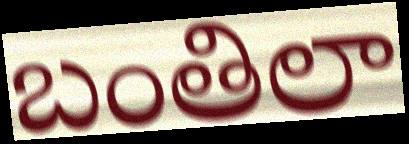
బంతిలా